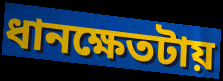
ধানক্ষেতটায়